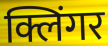
क्लिंगर